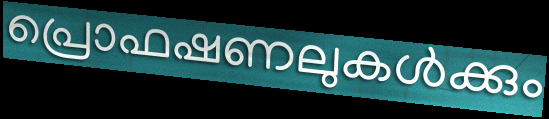
പ്രൊഫഷണലുകൾക്കും